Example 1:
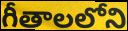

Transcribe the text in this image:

గీతాలలోని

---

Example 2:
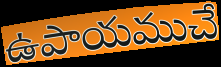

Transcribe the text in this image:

ఉపాయముచే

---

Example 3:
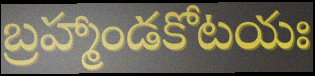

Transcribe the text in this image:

బ్రహ్మాండకోటయః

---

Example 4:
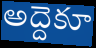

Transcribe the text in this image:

అద్దెకూ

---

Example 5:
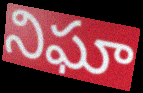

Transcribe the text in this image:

నిఘా